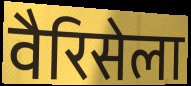
वैरिसेला